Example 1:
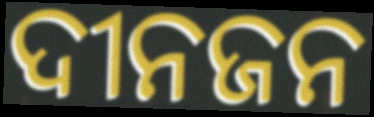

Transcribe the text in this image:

ଦୀନଜନ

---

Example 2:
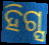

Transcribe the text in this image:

ହିଗ୍ସ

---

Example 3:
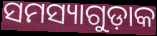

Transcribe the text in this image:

ସମସ୍ୟାଗୁଡ଼ାକ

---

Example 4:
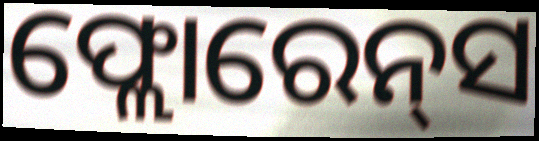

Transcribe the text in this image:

ଫ୍ଲୋରେନ୍‌ସ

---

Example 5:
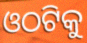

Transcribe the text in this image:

ଓଠଟିକୁ